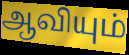
ஆவியும்